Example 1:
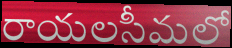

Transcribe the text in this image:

రాయలసీమలో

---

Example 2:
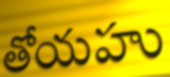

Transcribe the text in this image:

తోయహు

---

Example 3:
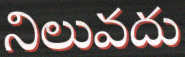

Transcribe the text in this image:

నిలువదు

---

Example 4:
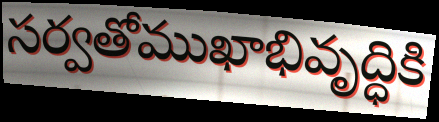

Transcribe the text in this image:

సర్వతోముఖాభివృద్ధికి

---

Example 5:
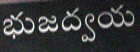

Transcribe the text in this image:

భుజద్వయ